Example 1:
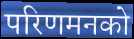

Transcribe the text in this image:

परिणमनको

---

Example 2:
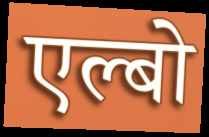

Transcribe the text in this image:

एल्बो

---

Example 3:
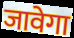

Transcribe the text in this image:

जावेगा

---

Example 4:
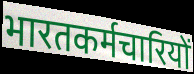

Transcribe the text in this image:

भारतकर्मचारियों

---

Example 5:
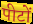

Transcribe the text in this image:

पीटों